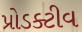
પ્રોડક્ટીવ